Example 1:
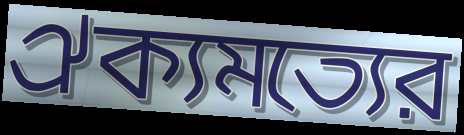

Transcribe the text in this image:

ঐক্যমত্যের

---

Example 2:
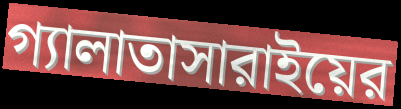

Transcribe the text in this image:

গ্যালাতাসারাইয়ের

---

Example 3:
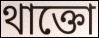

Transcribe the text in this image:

থাক্তো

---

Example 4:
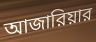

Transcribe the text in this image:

আজারিয়ার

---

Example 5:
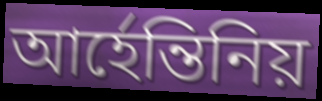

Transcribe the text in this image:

আর্হেন্তিনিয়